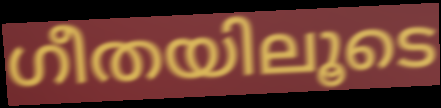
ഗീതയിലൂടെ